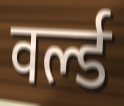
वर्ल्ड